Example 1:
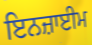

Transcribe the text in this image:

ਇਨਜ਼ਾਈਮ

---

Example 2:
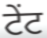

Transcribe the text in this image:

ਟੇਂਟ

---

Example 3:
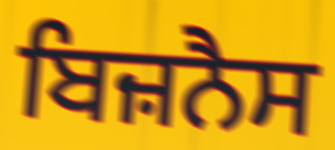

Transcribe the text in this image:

ਬਿਜ਼ਨੈਸ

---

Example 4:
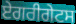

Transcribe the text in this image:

ਏਗਰੀਗੇਟਸ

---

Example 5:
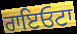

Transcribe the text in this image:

ਰਾਇਓਟਾ